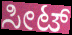
ಸೀಟ್